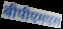
बीपीएमएस